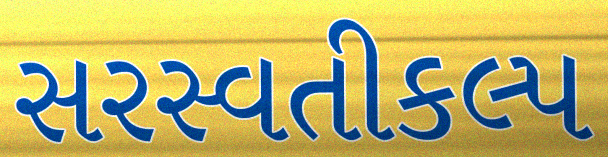
સરસ્વતીકલ્પ